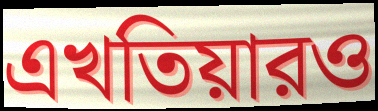
এখতিয়ারও